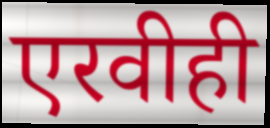
एरवीही